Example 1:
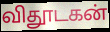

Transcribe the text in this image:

விதூடகன்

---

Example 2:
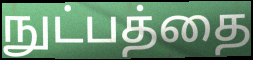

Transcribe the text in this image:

நுட்பத்தை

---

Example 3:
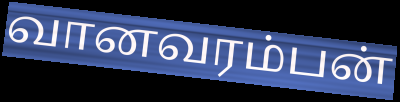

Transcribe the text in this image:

வானவரம்பன்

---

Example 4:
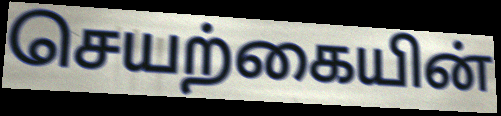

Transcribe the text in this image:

செயற்கையின்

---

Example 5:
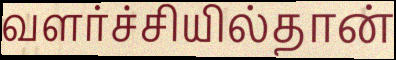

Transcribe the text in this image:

வளர்ச்சியில்தான்